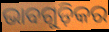
ଭାବଗୁଡ଼ିକର